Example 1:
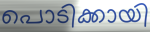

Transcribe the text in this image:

പൊടിക്കായി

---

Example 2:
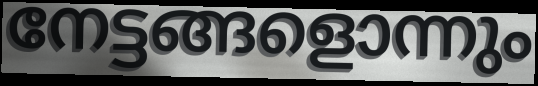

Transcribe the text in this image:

നേട്ടങ്ങളൊന്നും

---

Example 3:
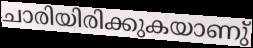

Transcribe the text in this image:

ചാരിയിരിക്കുകയാണു്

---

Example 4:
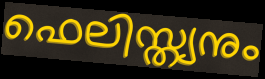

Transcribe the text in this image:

ഫെലിസ്ത്യനും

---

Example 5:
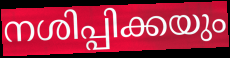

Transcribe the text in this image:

നശിപ്പിക്കയും